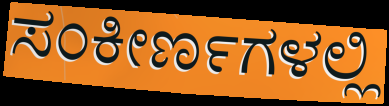
ಸಂಕೀರ್ಣಗಳಲ್ಲಿ